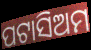
ପଟାସିଅମ